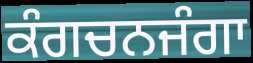
ਕੰਗਚਨਜੰਗਾ